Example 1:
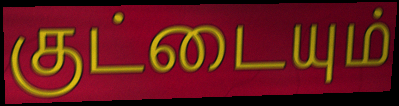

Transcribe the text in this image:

குட்டையும்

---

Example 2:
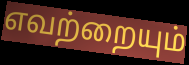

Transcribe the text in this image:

எவற்றையும்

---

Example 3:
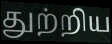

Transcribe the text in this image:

துற்றிய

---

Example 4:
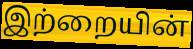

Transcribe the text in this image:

இற்றையின்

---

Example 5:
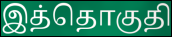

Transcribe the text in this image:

இத்தொகுதி